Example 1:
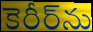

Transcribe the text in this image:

కెరీర్‌ను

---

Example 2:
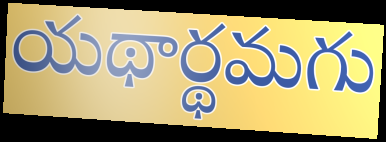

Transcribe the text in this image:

యథార్థమగు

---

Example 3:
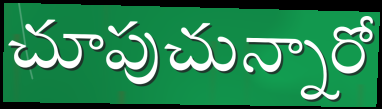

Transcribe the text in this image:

చూపుచున్నారో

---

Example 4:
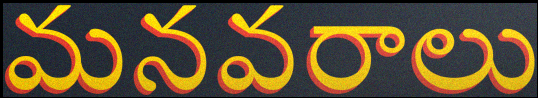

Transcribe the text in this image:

మనవరాలు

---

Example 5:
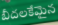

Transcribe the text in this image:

బీదలకేమైన